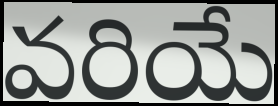
వరియే